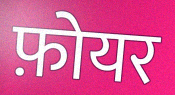
फ़ोयर